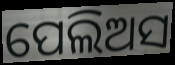
ପେଲିଅସ